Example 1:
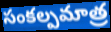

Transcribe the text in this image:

సంకల్పమాత్ర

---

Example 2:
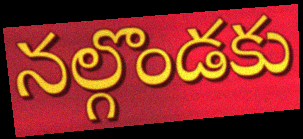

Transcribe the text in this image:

నల్గొండకు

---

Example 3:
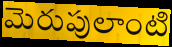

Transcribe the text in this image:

మెరుపులాంటి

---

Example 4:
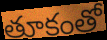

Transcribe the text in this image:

తూకంతో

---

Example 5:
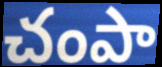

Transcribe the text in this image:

చంపా